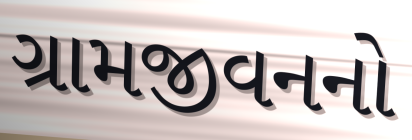
ગ્રામજીવનનો